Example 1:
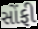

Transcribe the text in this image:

સોંફી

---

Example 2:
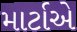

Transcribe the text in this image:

માર્ટાએ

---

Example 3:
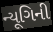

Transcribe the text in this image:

ન્યૂગિની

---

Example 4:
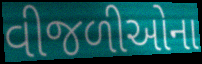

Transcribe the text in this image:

વીજળીઓના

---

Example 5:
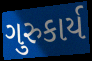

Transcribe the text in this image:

ગુરુકાર્ય